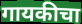
गायकीचा